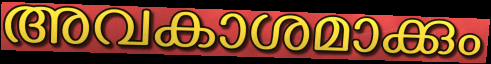
അവകാശമാക്കും